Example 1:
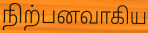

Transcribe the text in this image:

நிற்பனவாகிய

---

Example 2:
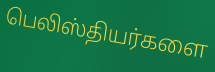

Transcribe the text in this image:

பெலிஸ்தியர்களை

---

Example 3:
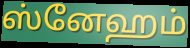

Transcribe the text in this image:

ஸ்னேஹம்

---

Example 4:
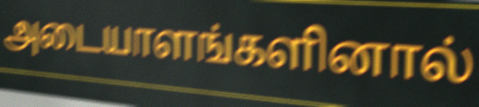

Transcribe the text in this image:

அடையாளங்களினால்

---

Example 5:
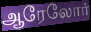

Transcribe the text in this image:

ஆரேலோர்